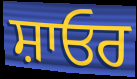
ਸ਼ਾਓਰ